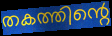
തകത്തിന്റെ